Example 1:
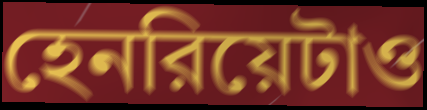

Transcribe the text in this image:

হেনরিয়েটাও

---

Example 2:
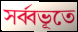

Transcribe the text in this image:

সর্ব্বভূতে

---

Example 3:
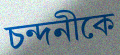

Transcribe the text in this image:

চন্দনীকে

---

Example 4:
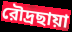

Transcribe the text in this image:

রৌদ্রছায়া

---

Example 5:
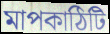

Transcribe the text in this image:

মাপকাঠিটি